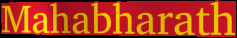
Mahabharath